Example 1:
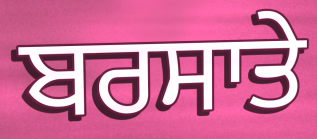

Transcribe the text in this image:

ਬਰਸਾਤੇ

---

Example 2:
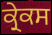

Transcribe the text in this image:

ਕ੍ਰੇਕਸ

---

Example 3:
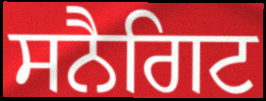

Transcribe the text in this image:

ਸਨੈਗਿਟ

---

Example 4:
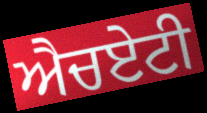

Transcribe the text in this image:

ਐਚਏਟੀ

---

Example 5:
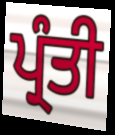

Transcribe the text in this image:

ਪ੍ਰੰਤੀ